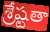
శ్రేష్టతా